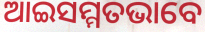
ଆଇସମ୍ମତଭାବେ